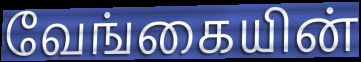
வேங்கையின்